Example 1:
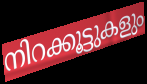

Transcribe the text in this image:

നിറക്കൂട്ടുകളും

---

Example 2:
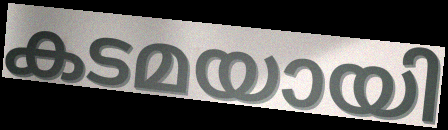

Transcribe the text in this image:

കടമയായി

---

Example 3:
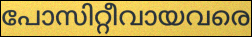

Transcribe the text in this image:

പോസിറ്റീവായവരെ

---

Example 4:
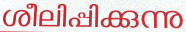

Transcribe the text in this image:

ശീലിപ്പിക്കുന്നു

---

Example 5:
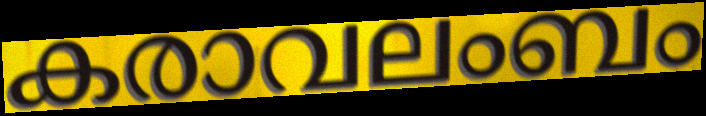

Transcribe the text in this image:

കരാവലംബം